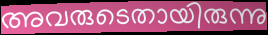
അവരുടെതായിരുന്നു